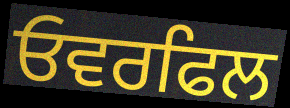
ਓਵਰਫਿਲ